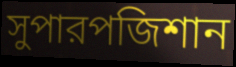
সুপারপজিশান